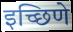
इच्छिणे